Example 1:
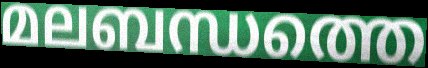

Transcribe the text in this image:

മലബന്ധത്തെ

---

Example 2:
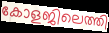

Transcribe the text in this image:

കോളജിലെത്തി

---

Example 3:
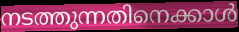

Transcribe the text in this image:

നടത്തുന്നതിനെക്കാൾ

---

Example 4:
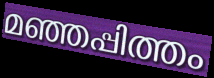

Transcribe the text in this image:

മഞ്ഞപ്പിത്തം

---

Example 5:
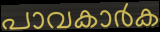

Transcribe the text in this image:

പാവകാർക